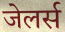
जेलर्स